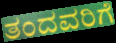
ತಂದವರಿಗೆ